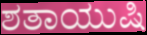
ಶತಾಯುಷಿ